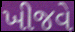
ખીજવે